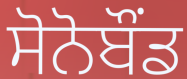
ਸੋਨੋਬੌਂਡ